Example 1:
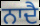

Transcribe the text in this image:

ਨਾਦੈ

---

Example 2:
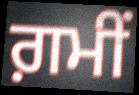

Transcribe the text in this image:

ਗ਼ਮੀਂ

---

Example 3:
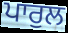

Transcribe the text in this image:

ਪਾਰੁਲ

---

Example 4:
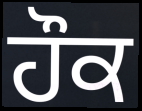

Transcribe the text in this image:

ਹੌਕ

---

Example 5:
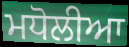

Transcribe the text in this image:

ਮਧੋਲੀਆ